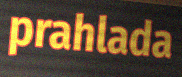
prahlada